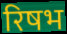
रिषभ